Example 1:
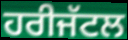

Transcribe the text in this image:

ਹਰੀਜੱਟਲ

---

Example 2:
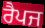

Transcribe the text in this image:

ਰੈਪਜ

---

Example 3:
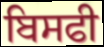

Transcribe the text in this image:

ਬਿਸਫੀ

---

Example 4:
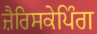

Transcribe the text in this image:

ਜ਼ੈਰਿਸਕੇਪਿੰਗ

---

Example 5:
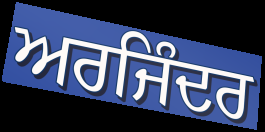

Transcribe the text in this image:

ਅਰਜਿੰਦਰ